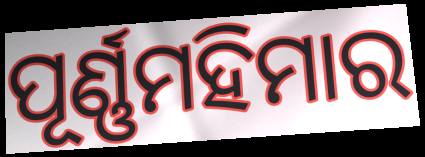
ପୂର୍ଣ୍ଣମହିମାର